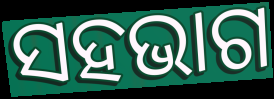
ସହଭାଗ